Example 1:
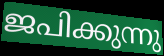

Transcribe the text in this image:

ജപിക്കുന്നു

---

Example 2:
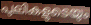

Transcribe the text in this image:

പുലികളുടെയും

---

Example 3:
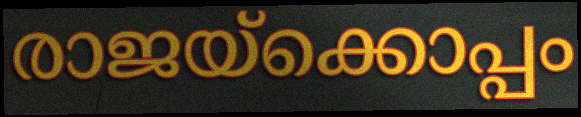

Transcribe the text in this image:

രാജയ്ക്കൊപ്പം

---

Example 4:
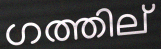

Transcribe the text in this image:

ഗത്തില്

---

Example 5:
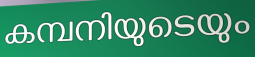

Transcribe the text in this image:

കമ്പനിയുടെയും